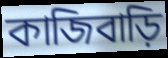
কাজিবাড়ি